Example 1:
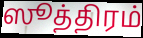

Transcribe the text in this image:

ஸூத்திரம்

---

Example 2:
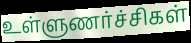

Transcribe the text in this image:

உள்ளுணர்ச்சிகள்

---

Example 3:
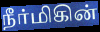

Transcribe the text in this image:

நீர்மிகின்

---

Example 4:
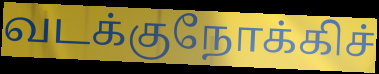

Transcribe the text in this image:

வடக்குநோக்கிச்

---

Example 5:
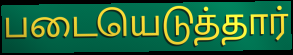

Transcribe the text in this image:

படையெடுத்தார்